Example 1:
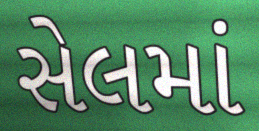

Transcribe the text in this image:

સેલમાં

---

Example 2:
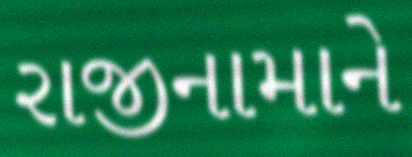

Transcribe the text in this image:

રાજીનામાને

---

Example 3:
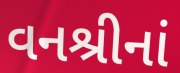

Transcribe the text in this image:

વનશ્રીનાં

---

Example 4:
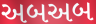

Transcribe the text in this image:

અબઅબ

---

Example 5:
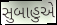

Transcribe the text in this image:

સુબાહુએ